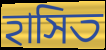
হাসিত